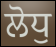
ਲੋਧੁ